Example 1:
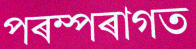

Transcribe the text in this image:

পৰম্পৰাগত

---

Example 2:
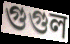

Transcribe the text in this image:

গুগুল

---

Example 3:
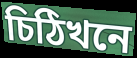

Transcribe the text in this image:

চিঠিখনে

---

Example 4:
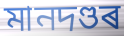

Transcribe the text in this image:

মানদণ্ডৰ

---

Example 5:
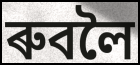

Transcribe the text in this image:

ৰুবলৈ